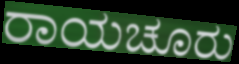
ರಾಯಚೂರು